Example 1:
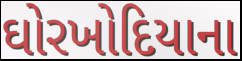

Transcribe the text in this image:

ઘોરખોદિયાના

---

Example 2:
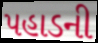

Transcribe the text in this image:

પહાડની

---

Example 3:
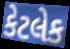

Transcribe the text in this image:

કેટલેક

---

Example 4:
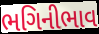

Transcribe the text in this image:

ભગિનીભાવ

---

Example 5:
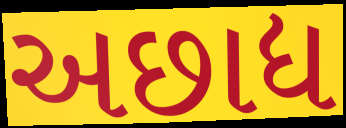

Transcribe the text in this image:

અછાદ્ય